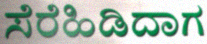
ಸೆರೆಹಿಡಿದಾಗ